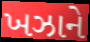
ખઝાને